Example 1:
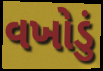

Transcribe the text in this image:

વખોડું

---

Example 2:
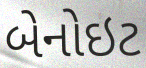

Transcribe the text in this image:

બેનોઇટ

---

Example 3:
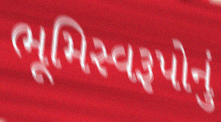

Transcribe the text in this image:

ભૂમિસ્વરૂપોનું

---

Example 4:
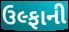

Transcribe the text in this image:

ઉલ્ફાની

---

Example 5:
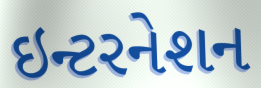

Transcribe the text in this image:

ઇન્ટરનેશન